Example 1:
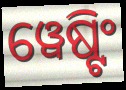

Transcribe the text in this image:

ୱେଷ୍ଟିଂ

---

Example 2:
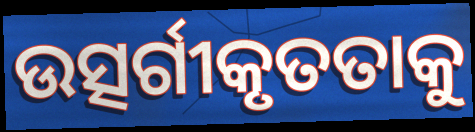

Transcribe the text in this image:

ଉତ୍ସର୍ଗୀକୃତତାକୁ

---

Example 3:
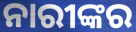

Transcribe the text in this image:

ନାରୀଙ୍କର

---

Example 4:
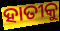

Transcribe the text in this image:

ହାତୀକୁ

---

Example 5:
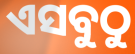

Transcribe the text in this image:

ଏସବୁଠୁ